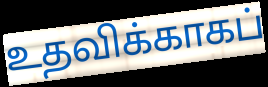
உதவிக்காகப்